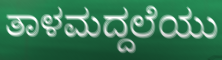
ತಾಳಮದ್ದಲೆಯು